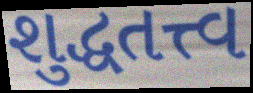
શુદ્ધતત્ત્વ